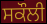
ਸਕੌਲੀ